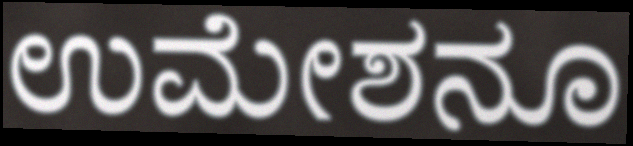
ಉಮೇಶನೂ